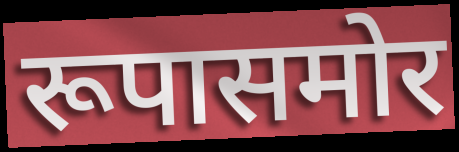
रूपासमोर